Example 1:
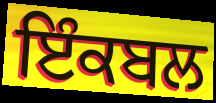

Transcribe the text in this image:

ਇੰਕਬਲ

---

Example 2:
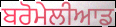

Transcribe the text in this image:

ਬਰੋਮੇਲੀਆਡ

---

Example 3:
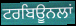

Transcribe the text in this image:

ਟਰਬਿਊਨਲਾਂ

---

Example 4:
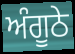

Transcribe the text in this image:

ਅੰਗੂਠੇ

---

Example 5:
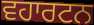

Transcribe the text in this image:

ਵਹਾਰਟਨ